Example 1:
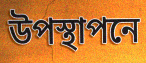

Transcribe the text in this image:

উপস্থাপনে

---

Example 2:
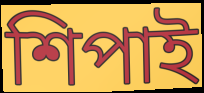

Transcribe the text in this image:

শিপাই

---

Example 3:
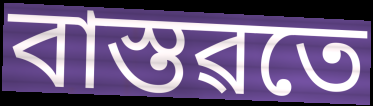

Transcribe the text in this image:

বাস্তৱতে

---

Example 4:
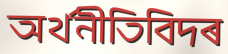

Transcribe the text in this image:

অৰ্থনীতিবিদৰ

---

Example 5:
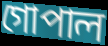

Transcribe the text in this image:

গোপাল